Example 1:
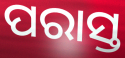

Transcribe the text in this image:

ପରାସ୍ତ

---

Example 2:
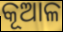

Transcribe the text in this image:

କୂଆଳ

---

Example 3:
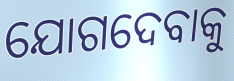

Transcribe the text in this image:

ଯୋଗଦେବାକୁ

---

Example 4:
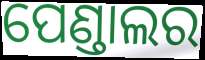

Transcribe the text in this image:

ପେଣ୍ଡାଲର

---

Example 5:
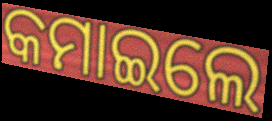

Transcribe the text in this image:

କମାଇଲେ